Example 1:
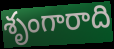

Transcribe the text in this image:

శృంగారాది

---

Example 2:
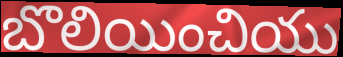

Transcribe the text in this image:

బొలియించియు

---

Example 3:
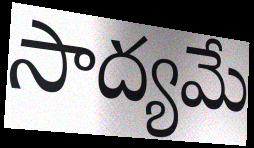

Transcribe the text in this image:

సాద్యమే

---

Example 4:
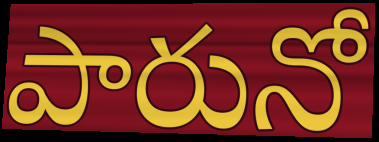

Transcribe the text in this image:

పారునో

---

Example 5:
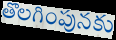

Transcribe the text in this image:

తొలగింపునకు